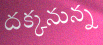
దక్కనున్న